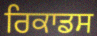
ਰਿਕਾਡਸ